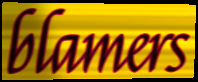
blamers